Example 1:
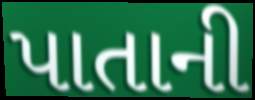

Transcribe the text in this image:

પાતાની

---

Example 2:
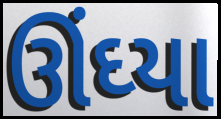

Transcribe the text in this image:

ઊંઘ્યા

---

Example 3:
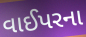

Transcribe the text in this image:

વાઈપરના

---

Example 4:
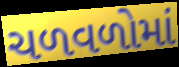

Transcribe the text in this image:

ચળવળોમાં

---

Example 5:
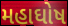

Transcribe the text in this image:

મહાઘોષ